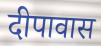
दीपावास